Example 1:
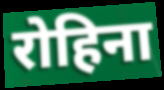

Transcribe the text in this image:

रोहिना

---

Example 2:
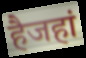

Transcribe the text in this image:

हैजहां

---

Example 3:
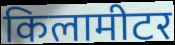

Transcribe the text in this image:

किलामीटर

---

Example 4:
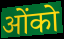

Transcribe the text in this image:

ओंको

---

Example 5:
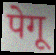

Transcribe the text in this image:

पेगू